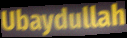
Ubaydullah